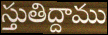
స్తుతిద్దాము